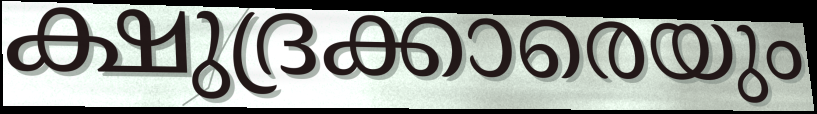
ക്ഷുദ്രക്കാരെയും